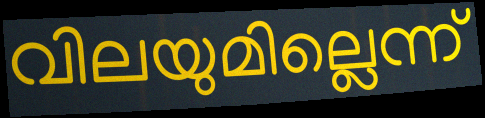
വിലയുമില്ലെന്ന്